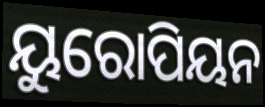
ୟୁରୋପିୟନ